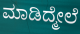
ಮಾಡಿದ್ಮೇಲೆ